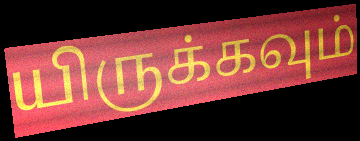
யிருக்கவும்